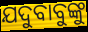
ଯଦୁବାବୁଙ୍କୁ